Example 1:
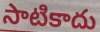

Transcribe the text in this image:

సాటికాదు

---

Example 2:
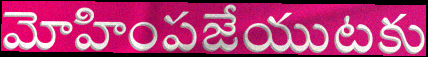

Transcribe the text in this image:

మోహింపజేయుటకు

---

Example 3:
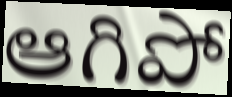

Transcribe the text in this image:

ఆగిపో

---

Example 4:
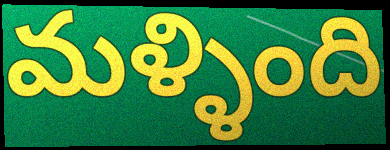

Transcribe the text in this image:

మళ్ళింది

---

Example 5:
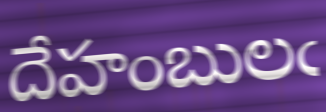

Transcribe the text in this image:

దేహంబులఁ